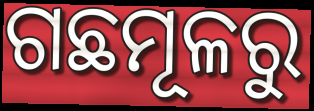
ଗଛମୂଳରୁ